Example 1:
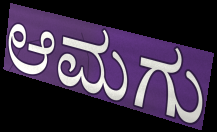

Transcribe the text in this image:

ಆಮಗು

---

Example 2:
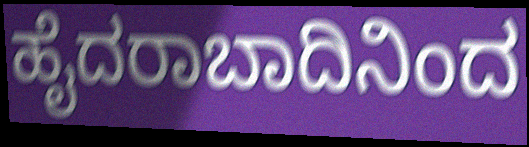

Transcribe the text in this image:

ಹೈದರಾಬಾದಿನಿಂದ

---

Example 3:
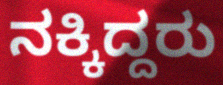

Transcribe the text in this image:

ನಕ್ಕಿದ್ದರು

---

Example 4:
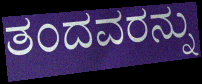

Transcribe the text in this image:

ತಂದವರನ್ನು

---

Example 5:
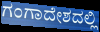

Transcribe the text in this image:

ಗಂಗಾದೇಶದಲ್ಲಿ